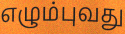
எழும்புவது